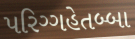
પરિગ્ગહેતબ્બા